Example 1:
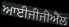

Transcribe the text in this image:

ਆਈਜੀਜੀਐੱਲ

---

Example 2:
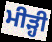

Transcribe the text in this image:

ਮੀੜ੍ਹੀ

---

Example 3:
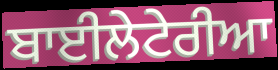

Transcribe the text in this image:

ਬਾਈਲੇਟੇਰੀਆ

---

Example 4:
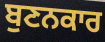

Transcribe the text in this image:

ਬੁਣਨਕਾਰ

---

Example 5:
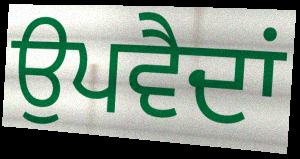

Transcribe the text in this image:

ਉਪਵੈਦਾਂ